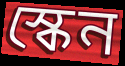
স্কেন